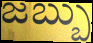
జబ్బు